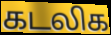
கடலிக